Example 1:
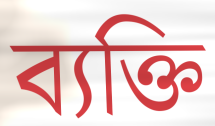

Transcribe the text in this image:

ব্যক্তি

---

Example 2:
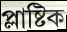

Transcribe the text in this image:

প্লাষ্টিক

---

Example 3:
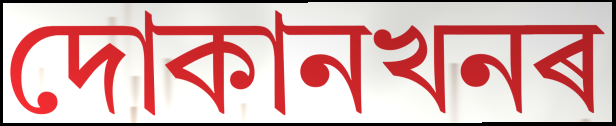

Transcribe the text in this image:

দোকানখনৰ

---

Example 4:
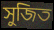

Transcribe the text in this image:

সুজিত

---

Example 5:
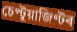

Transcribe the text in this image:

চেপ্টুয়াজিণ্টৰ